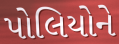
પોલિયોને